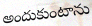
అందుకుంటాను